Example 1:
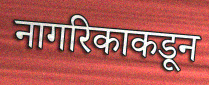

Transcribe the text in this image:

नागरिकाकडून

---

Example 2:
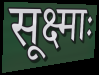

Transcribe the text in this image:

सूक्ष्माः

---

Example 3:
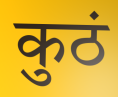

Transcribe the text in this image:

कुठं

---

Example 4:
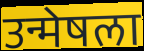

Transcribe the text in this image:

उन्मेषला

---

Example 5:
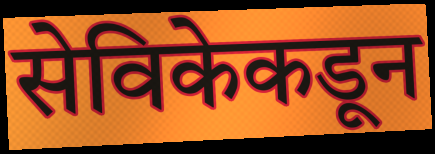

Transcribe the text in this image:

सेविकेकडून